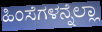
ಹಿಂಸೆಗಳನ್ನೆಲ್ಲಾ